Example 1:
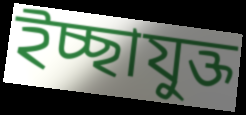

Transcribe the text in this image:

ইচ্ছাযুক্ত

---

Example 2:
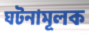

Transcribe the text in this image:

ঘটনামূলক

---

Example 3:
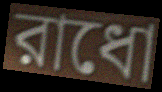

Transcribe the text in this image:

রাধো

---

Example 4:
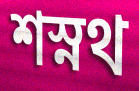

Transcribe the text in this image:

শস্নথ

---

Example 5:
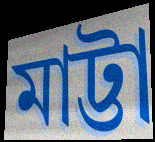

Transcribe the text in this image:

মাট্টা